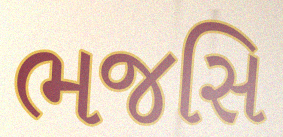
ભજસિ